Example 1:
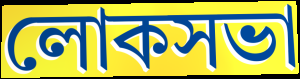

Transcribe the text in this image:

লোকসভা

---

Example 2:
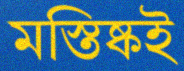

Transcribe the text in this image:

মস্তিষ্কই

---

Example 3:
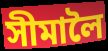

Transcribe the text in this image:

সীমালৈ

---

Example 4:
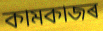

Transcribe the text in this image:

কামকাজৰ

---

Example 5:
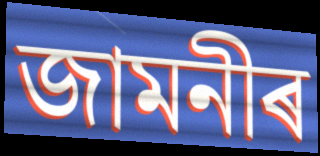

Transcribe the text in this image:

জামনীৰ